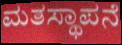
ಮತಸ್ಥಾಪನೆ